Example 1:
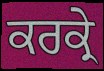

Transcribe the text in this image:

ਕਰਕ੍ਰੇ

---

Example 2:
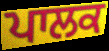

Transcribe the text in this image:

ਪਾਲਕ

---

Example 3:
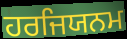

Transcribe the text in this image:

ਹਰਜਿਯਨਮ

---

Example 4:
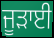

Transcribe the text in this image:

ਜੂੜਾਈ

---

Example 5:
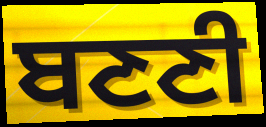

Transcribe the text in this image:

ਬਣਣੀ